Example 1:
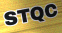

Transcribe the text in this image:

STQC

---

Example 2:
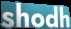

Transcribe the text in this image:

shodh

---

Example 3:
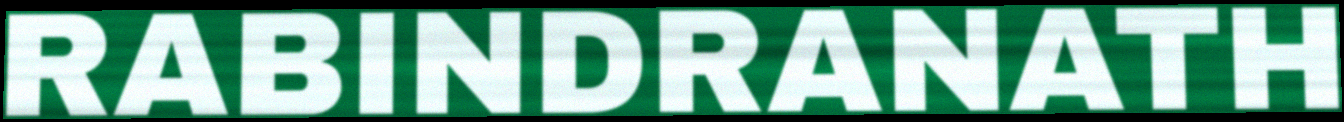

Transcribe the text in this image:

RABINDRANATH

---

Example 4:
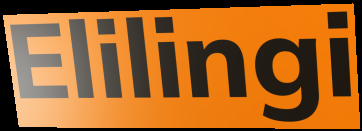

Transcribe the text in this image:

Elilingi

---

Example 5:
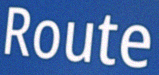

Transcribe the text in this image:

Route